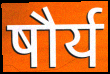
षौर्य